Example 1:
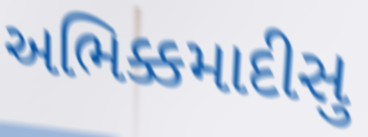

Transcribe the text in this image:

અભિક્કમાદીસુ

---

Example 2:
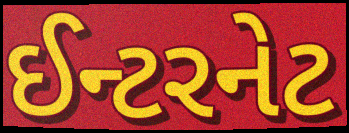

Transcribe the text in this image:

ઈન્ટરનેટ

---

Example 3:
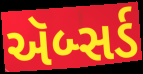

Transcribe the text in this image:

ઍબ્સર્ડ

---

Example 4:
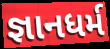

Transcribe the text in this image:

જ્ઞાનધર્મ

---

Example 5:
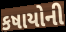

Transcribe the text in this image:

કષાયોની